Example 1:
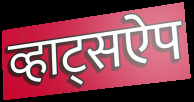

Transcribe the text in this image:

व्‍हाट्सऐप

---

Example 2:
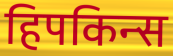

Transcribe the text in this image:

हिपकिन्स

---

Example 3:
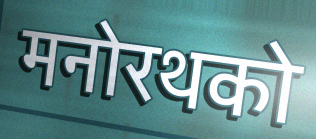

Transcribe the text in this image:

मनोरथको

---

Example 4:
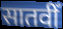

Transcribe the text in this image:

सातवीँ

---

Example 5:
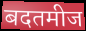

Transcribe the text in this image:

बदतमीज